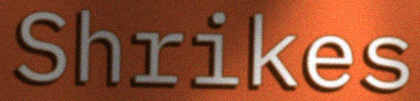
Shrikes